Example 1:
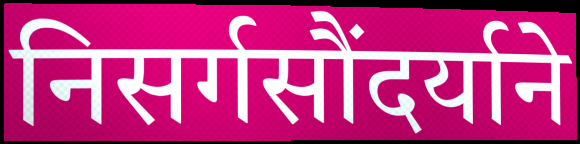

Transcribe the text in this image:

निसर्गसौंदर्याने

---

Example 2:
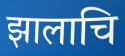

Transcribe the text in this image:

झालाचि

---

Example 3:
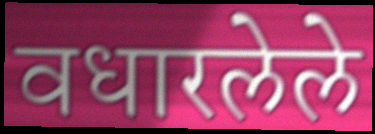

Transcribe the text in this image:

वधारलेले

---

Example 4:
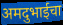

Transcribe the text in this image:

अमदुभाईचा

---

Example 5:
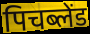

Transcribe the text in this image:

पिचब्लेंड